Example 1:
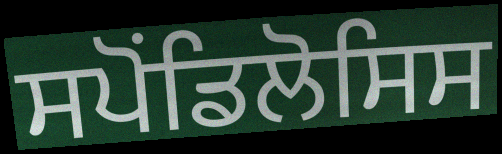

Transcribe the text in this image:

ਸਪੋਂਡਿਲੋਸਿਸ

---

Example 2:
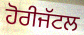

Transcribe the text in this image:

ਹੋਰੀਜੱਟਲ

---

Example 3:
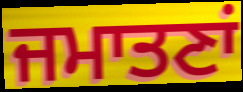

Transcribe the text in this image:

ਜਮਾਤਣਾਂ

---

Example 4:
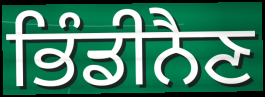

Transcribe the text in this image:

ਭਿੰਡੀਨੈਣ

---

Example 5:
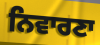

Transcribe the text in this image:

ਨਿਵਾਰਣਾ